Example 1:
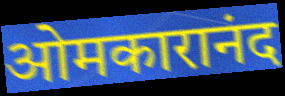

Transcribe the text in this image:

ओमकारानंद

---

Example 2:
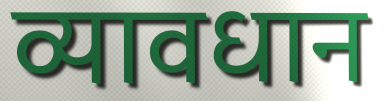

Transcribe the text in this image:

व्यावधान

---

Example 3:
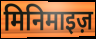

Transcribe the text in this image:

मिनिमाइज़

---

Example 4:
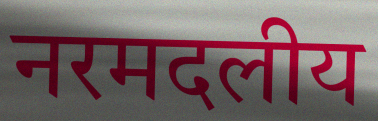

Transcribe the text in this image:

नरमदलीय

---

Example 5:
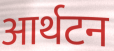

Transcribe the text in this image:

आर्थटन